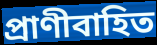
প্রাণীবাহিত